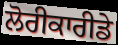
ਲੋਰੀਕਾਰੀਡੇ